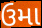
ઉમા